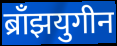
ब्राँझयुगीन